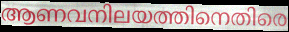
ആണവനിലയത്തിനെതിരെ